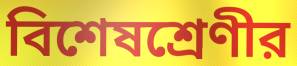
বিশেষশ্রেণীর